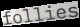
follies